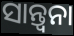
ସାନ୍ତ୍ଵନା